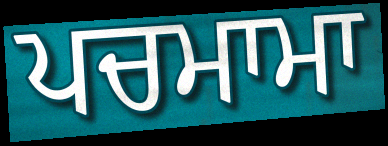
ਪਚਮਾਮਾ